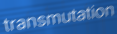
transmutation